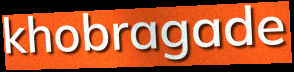
khobragade